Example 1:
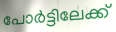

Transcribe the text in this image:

പോർട്ടിലേക്ക്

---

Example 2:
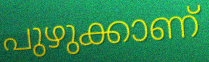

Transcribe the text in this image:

പുഴുക്കാണ്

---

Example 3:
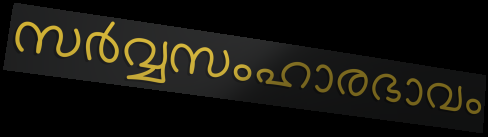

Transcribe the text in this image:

സർവ്വസംഹാരഭാവം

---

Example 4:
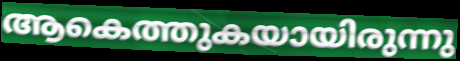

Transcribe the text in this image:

ആകെത്തുകയായിരുന്നു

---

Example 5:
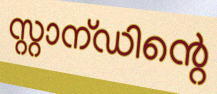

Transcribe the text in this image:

സ്റ്റാന്ഡിന്റെ